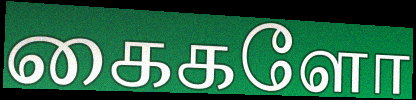
கைகளோ